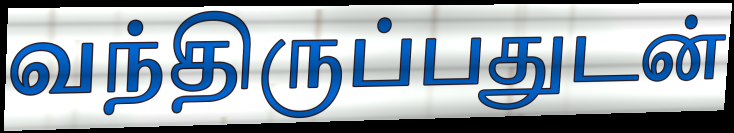
வந்திருப்பதுடன்